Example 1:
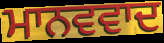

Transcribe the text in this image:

ਮਾਨਵਵਾਦ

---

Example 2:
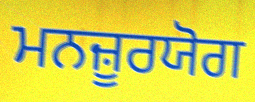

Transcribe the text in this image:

ਮਨਜ਼ੂਰਯੋਗ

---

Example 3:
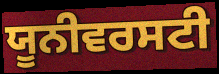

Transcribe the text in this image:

ਯੂਨੀਵਰਸਟੀ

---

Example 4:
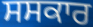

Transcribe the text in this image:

ਸਸਕਾਰ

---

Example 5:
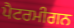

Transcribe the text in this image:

ਪੈਟਰਮੀਗਨ